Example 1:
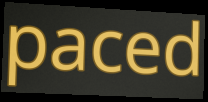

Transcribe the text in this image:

paced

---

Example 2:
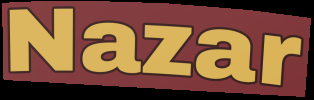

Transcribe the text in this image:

Nazar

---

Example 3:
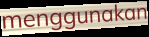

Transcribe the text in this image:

menggunakan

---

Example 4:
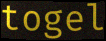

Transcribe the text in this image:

togel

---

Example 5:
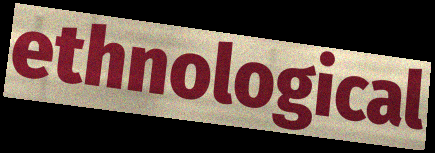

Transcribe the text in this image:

ethnological